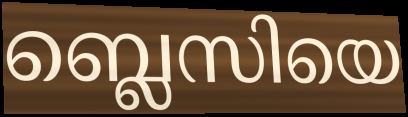
ബ്ലെസിയെ